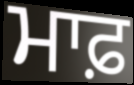
ਮਾਫ਼